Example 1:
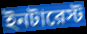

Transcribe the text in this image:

ইনটারেস্ট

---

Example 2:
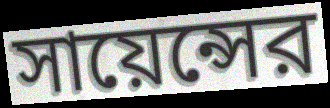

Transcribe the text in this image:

সায়েন্সের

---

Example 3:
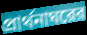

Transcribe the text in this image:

প্রার্থনাঘরের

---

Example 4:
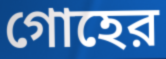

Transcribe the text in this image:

গোহের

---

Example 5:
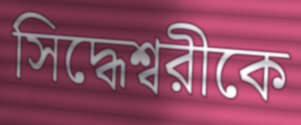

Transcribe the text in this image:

সিদ্ধেশ্বরীকে